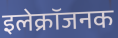
इलेक्रॉजनक